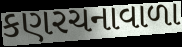
કણરચનાવાળા